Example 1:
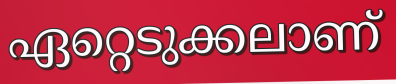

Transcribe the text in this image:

ഏറ്റെടുക്കലാണ്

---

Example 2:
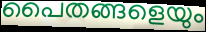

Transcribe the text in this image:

പൈതങ്ങളെയും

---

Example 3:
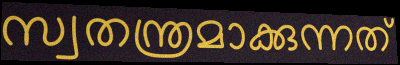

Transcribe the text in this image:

സ്വതന്ത്രമാക്കുന്നത്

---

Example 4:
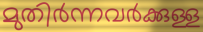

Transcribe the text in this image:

മുതിർന്നവർക്കുള്ള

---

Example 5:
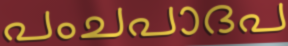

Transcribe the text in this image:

പംചപാദപ